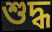
শুদ্ধ